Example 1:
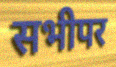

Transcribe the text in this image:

सभीपर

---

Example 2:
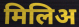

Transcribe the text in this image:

मिलिअ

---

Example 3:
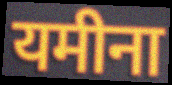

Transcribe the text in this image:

यमीना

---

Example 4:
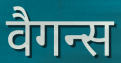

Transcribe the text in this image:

वैगन्स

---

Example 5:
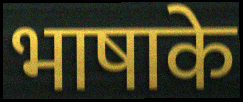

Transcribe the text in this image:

भाषाके